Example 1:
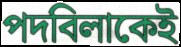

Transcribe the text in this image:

পদবিলাকেই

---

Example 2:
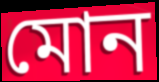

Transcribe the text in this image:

মোন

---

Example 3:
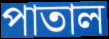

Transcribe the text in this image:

পাতাল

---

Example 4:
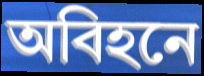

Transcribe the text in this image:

অবিহনে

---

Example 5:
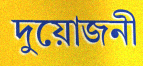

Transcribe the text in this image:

দুয়োজনী